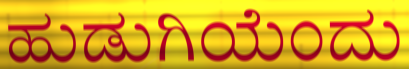
ಹುಡುಗಿಯೆಂದು